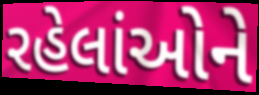
રહેલાંઓને